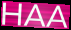
HAA